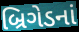
બ્રિગેડનાં